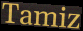
Tamiz